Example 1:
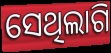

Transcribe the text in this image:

ସେଥିଲାଗି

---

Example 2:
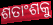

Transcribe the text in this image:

ଶତାଂଶକୁ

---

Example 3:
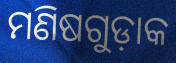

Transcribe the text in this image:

ମଣିଷଗୁଡ଼ାକ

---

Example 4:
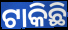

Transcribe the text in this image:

ଟାକିଛି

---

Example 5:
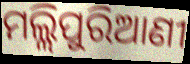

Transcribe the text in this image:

ମଲ୍ଲିପୁରିଆଣୀ